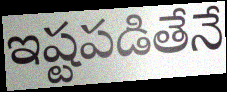
ఇష్టపడితేనే